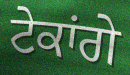
ਟੇਕਾਂਗੇ